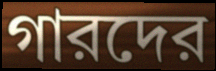
গারদের